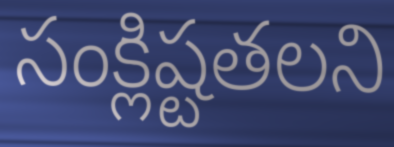
సంక్లిష్టతలని